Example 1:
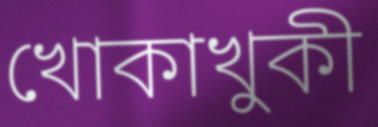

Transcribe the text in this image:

খোকাখুকী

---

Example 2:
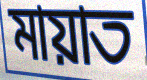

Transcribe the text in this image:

মায়াত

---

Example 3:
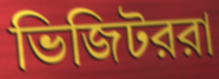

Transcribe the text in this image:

ভিজিটররা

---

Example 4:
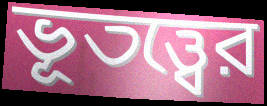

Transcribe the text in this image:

ভূতত্ত্বের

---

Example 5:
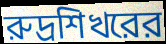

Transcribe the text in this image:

রুদ্রশিখরের